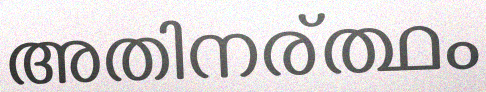
അതിനര്ത്ഥം